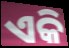
ଏକି